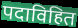
पदाविहित